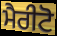
ਮੈਰੀਟੋ